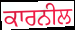
ਕਾਰਨੀਲ